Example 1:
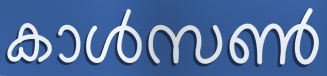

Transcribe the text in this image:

കാൾസൺ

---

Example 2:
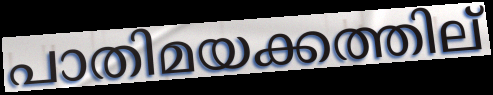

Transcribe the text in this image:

പാതിമയക്കത്തില്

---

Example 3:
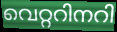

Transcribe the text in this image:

വെറ്ററിനറി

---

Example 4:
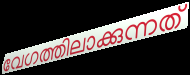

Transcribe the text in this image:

വേഗത്തിലാക്കുന്നത്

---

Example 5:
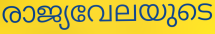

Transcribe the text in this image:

രാജ്യവേലയുടെ